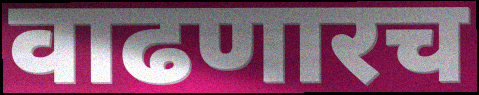
वाढणारच